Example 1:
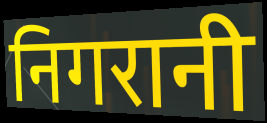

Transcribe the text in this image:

निगरानी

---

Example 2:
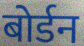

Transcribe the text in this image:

बोर्डन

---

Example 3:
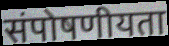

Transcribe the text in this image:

संपोषणीयता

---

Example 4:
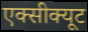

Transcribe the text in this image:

एक्सीक्यूट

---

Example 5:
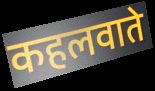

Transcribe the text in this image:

कहलवाते